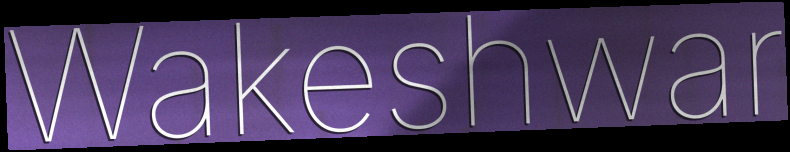
Wakeshwar